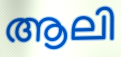
ആലി